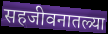
सहजीवनातल्या